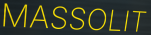
MASSOLIT